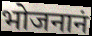
भोजनानं